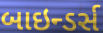
બાઇન્ડર્સ